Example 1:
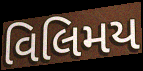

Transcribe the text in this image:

વિલિમય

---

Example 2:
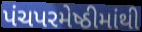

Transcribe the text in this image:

પંચપરમેષ્ઠીમાંથી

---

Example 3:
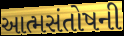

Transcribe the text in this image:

આત્મસંતોષની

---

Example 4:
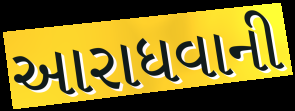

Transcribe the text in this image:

આરાધવાની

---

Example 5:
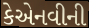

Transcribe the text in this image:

કેએનવીની